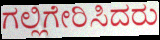
ಗಲ್ಲಿಗೇರಿಸಿದರು